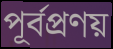
পূর্বপ্রণয়